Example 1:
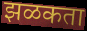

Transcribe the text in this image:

झळकता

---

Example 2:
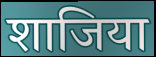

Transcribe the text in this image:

शाजिया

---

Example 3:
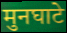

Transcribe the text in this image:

मुनघाटे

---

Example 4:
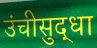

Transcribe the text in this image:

उंचीसुद्धा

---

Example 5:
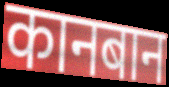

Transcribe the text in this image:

कानबान